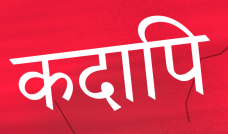
कदापि